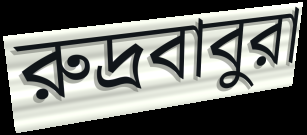
রুদ্রবাবুরা